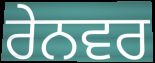
ਰੇਨਵਰ